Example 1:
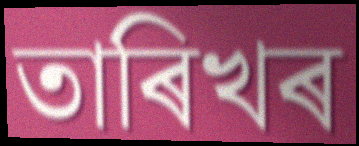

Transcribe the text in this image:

তাৰিখৰ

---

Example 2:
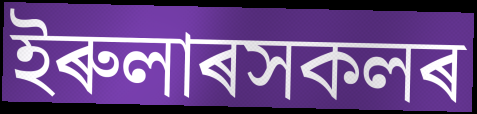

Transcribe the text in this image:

ইৰুলাৰসকলৰ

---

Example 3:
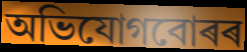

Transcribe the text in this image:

অভিযোগবোৰৰ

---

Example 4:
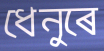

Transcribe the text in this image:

ধেনুৰে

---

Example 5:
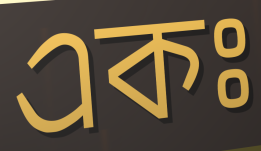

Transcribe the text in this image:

একঃ